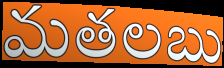
మతలబు